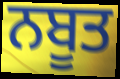
ਨਬੂਤ